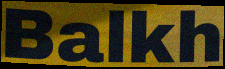
Balkh